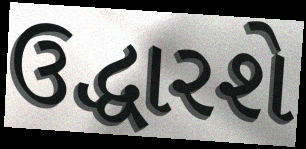
ઉદ્ધારશે